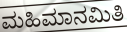
ಮಹಿಮಾನಮಿತಿ